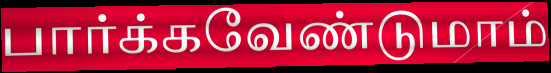
பார்க்கவேண்டுமாம்